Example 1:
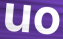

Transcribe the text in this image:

uo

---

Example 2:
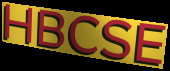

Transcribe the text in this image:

HBCSE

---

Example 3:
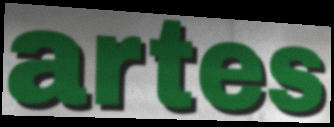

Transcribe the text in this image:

artes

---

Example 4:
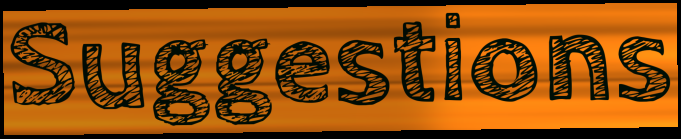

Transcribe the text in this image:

Suggestions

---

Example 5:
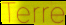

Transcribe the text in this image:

Terre